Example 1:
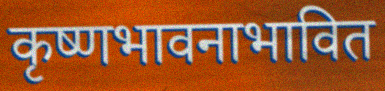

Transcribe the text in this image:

कृष्णभावनाभावित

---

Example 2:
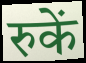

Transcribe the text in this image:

रुकें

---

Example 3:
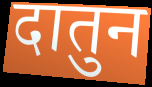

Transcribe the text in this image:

दातुन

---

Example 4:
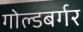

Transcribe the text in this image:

गोल्डबर्गर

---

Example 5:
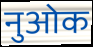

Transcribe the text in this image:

नुओक